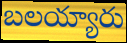
బలయ్యారు